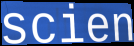
scien